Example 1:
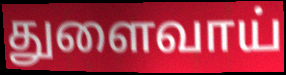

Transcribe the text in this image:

துளைவாய்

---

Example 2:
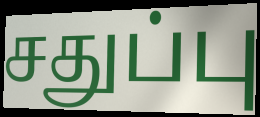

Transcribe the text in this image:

சதுப்பு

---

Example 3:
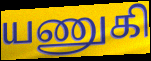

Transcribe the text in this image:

யணுகி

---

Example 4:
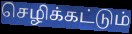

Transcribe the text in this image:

செழிக்கட்டும்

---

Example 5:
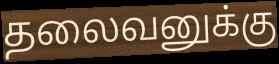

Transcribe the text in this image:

தலைவனுக்கு